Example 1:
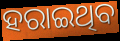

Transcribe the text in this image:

ହରାଇଥିବ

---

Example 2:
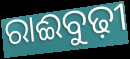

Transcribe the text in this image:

ରାଈବୁଢ଼ୀ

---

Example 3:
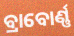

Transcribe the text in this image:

ବ୍ରାବୋର୍ଣ୍ଣ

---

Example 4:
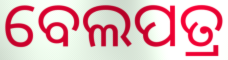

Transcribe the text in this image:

ବେଲପତ୍ର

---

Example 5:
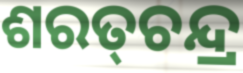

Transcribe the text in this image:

ଶରତ୍‌ଚନ୍ଦ୍ର